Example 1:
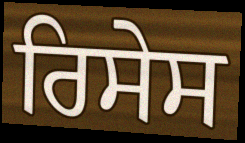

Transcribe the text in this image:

ਰਿਸੇਸ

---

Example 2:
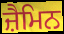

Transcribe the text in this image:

ਜ਼ੈਮਿਨ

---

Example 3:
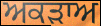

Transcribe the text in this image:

ਅਕੜਾਅ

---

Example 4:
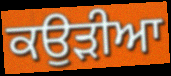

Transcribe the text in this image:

ਕਉੜੀਆ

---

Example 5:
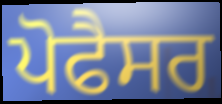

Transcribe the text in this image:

ਪੋਫੈਸਰ